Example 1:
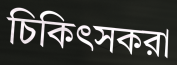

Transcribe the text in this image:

চিকিৎসকরা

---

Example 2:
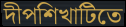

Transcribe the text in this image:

দীপশিখাটিতে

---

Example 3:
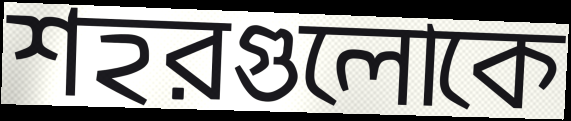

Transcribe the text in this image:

শহরগুলোকে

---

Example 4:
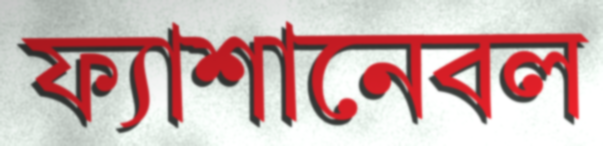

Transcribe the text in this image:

ফ্যাশানেবল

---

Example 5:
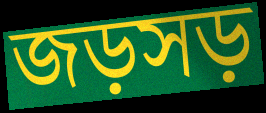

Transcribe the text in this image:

জড়সড়